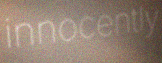
innocently